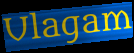
Ulagam